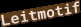
Leitmotif